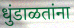
धुंडाळतांना